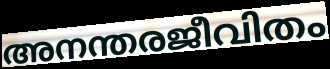
അനന്തരജീവിതം